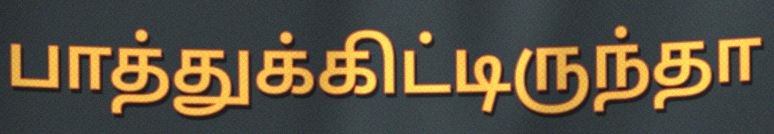
பாத்துக்கிட்டிருந்தா